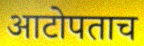
आटोपताच